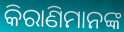
କିରାଣିମାନଙ୍କ